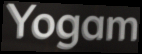
Yogam